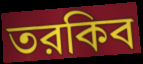
তরকিব